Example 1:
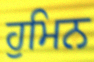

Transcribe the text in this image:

ਹੁਮਿਨ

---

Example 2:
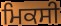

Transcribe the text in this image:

ਮਿਕਸੀ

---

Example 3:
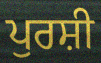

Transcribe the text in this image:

ਪੁਰਸ਼ੀ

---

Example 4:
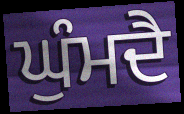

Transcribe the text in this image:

ਘੁੰਮਦੈ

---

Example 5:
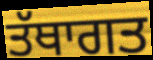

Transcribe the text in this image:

ਤੱਥਾਗਤ